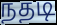
நதடி